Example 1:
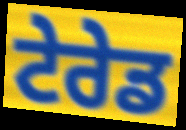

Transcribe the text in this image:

ਟੇਰੇਡ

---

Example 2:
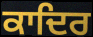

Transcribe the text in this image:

ਕਾਦਿਰ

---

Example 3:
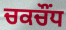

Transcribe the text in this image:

ਚਕਚੌਂਧ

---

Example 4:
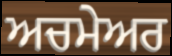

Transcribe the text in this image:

ਅਚਮੇਅਰ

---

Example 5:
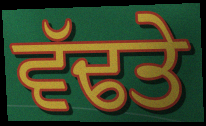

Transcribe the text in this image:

ਵੱਢਤੇ